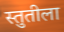
स्तुतीला